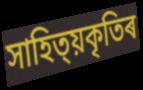
সাহিত্য়কৃতিৰ